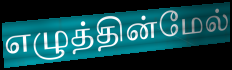
எழுத்தின்மேல்